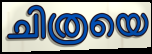
ചിത്രയെ